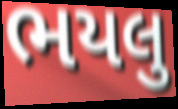
ભયલુ